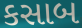
કસાબ